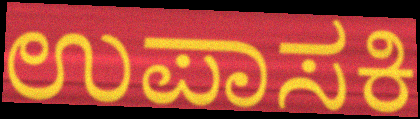
ಉಪಾಸಕಿ